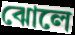
ঝোলে